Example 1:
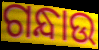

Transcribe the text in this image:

ଗନ୍ଧାଉ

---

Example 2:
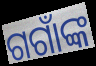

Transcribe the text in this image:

ଗଗାଁଙ୍କ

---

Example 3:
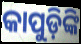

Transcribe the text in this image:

କାପୁଡ଼ିଙ୍କି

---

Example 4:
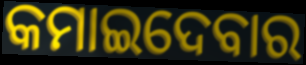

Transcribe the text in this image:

କମାଇଦେବାର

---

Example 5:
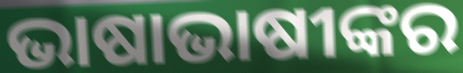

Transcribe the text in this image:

ଭାଷାଭାଷୀଙ୍କର